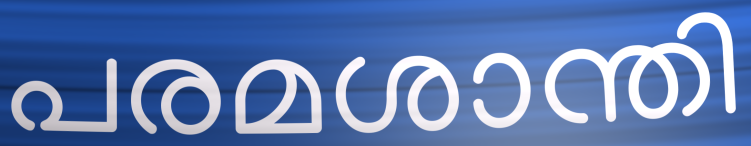
പരമശാന്തി